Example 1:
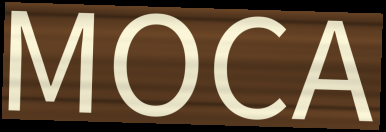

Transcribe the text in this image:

MOCA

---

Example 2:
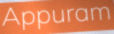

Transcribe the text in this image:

Appuram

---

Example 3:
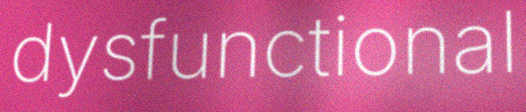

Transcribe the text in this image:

dysfunctional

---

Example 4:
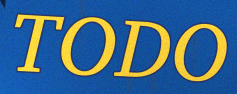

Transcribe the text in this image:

TODO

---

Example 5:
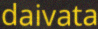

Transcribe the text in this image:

daivata